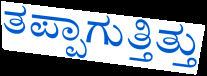
ತಪ್ಪಾಗುತ್ತಿತ್ತು